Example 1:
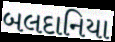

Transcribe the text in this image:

બલદાનિયા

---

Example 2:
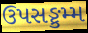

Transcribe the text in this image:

ઉપસઙ્કમ્મ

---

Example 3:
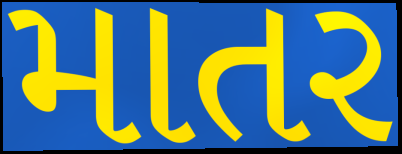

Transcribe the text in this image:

માતર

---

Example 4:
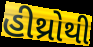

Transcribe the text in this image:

હીથ્રોથી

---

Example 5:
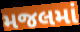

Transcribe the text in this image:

મજલમાં